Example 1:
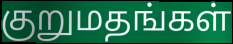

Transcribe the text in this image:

குறுமதங்கள்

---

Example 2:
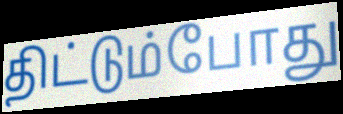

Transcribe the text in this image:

திட்டும்போது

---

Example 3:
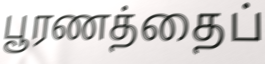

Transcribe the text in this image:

பூரணத்தைப்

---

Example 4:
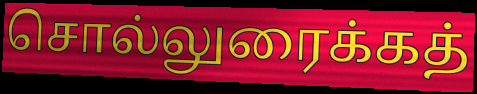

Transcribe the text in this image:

சொல்லுரைக்கத்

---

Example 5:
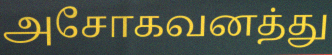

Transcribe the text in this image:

அசோகவனத்து